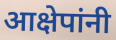
आक्षेपांनी